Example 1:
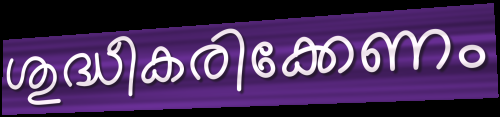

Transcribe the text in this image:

ശുദ്ധീകരിക്കേണം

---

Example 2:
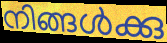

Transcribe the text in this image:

നിങ്ങൾക്കു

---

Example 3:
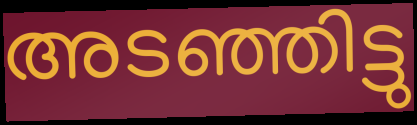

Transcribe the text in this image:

അടഞ്ഞിട്ടു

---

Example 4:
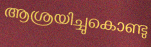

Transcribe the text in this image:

ആശ്രയിച്ചുകൊണ്ടു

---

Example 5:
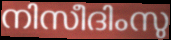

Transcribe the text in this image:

നിസീദിംസു